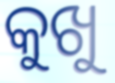
କୁଖୁ